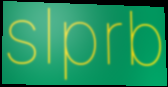
slprb